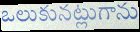
ఒలుకునట్లుగాను